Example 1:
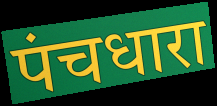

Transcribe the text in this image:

पंचधारा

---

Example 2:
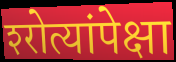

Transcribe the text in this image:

श्रोत्यांपेक्षा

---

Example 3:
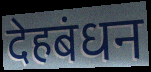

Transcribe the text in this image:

देहबंधन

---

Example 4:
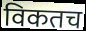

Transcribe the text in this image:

विकतच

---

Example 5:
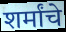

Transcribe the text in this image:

शर्मांचे